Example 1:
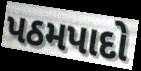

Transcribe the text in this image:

પઠમપાદો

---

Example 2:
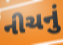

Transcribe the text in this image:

નીચનું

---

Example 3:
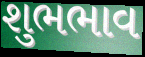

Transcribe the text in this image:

શુભભાવ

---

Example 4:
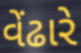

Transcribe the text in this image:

વેંઢારે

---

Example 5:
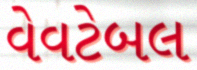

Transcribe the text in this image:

વેવટેબલ